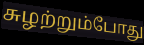
சுழற்றும்போது